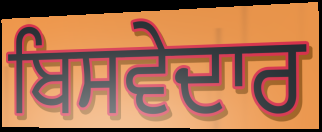
ਬਿਸਵੇਦਾਰ